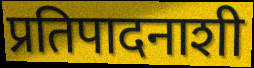
प्रतिपादनाशी